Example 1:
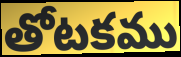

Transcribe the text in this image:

తోటకము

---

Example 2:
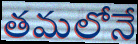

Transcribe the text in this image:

తమలోనే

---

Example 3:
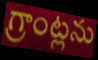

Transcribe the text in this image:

గ్రాంట్లను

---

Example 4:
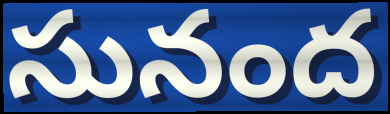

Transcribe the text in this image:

సునంద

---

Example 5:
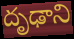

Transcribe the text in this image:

దృఢాని